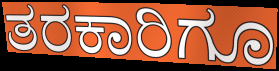
ತರಕಾರಿಗೂ